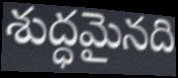
శుద్ధమైనది